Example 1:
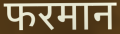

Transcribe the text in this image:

फरमान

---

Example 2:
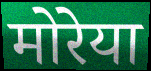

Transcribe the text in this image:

मोरेया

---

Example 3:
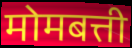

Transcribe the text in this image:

मोमबत्ती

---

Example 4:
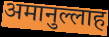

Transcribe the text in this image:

अमानुल्लाह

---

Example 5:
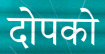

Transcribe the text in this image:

दोपको